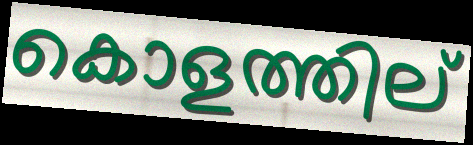
കൊളത്തില്